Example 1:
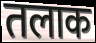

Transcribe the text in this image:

तलाक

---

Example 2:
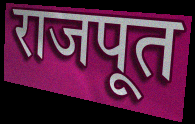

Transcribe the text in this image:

राजपूत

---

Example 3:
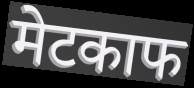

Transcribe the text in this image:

मेटकाफ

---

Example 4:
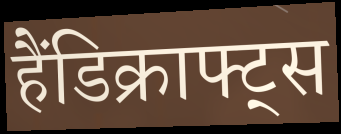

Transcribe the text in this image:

हैंडिक्राफ्ट्स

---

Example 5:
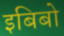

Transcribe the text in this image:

इबिबो